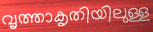
വൃത്താകൃതിയിലുള്ള